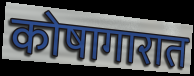
कोषागारात